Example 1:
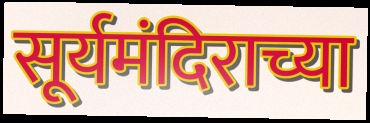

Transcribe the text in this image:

सूर्यमंदिराच्या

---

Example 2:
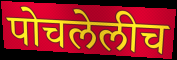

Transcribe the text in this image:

पोचलेलीच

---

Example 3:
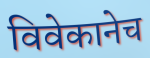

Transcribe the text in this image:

विवेकानेच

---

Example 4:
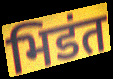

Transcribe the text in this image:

भिडंत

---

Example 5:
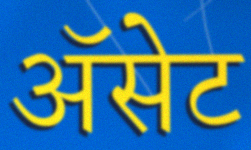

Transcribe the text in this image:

ॲसेट